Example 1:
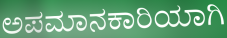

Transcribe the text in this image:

ಅಪಮಾನಕಾರಿಯಾಗಿ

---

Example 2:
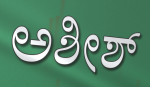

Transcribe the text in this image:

ಅಶೀಶ್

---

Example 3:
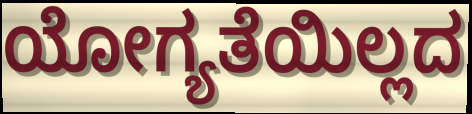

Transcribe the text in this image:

ಯೋಗ್ಯತೆಯಿಲ್ಲದ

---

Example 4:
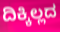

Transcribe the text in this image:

ದಿಕ್ಕಿಲ್ಲದ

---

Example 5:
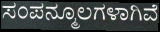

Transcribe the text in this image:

ಸಂಪನ್ಮೂಲಗಳಾಗಿವೆ